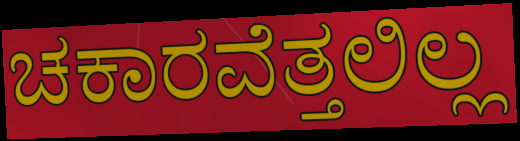
ಚಕಾರವೆತ್ತಲಿಲ್ಲ